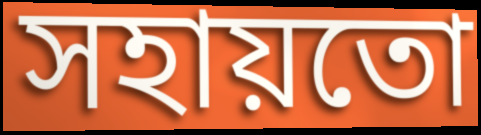
সহায়তো